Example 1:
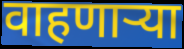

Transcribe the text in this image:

वाहणाऱ्या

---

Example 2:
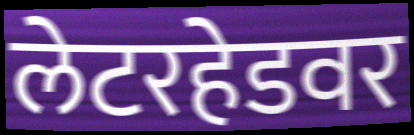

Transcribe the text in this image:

लेटरहेडवर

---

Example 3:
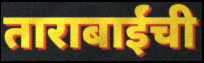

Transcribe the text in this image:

ताराबाईंची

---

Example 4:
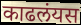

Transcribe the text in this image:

काढलंयस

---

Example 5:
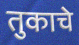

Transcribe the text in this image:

तुकाचे